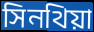
সিনথিয়া